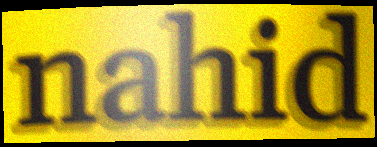
nahid